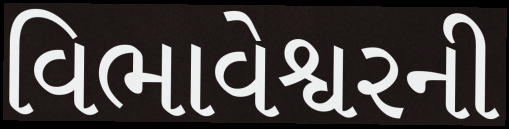
વિભાવેશ્વરની